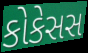
કોકેસસ